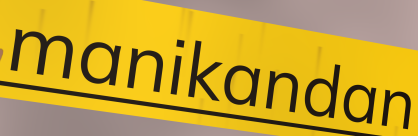
manikandan